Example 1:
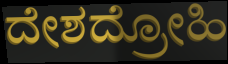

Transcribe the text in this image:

ದೇಶದ್ರೋಹಿ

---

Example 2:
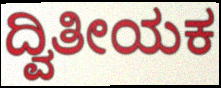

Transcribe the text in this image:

ದ್ವಿತೀಯಕ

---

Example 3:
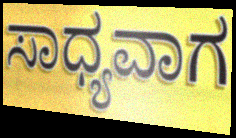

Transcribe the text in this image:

ಸಾಧ್ಯವಾಗ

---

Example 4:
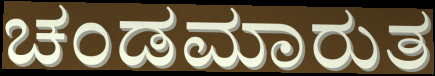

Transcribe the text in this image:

ಚಂಡಮಾರುತ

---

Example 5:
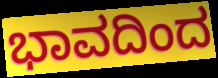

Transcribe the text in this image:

ಭಾವದಿಂದ